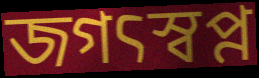
জগৎস্বপ্ন